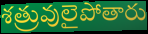
శత్రువులైపోతారు